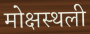
मोक्षस्थली